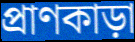
প্রাণকাড়া